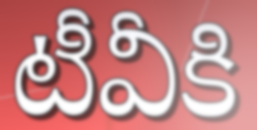
టీవీకి